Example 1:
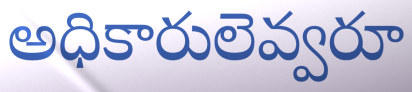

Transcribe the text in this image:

అధికారులెవ్వరూ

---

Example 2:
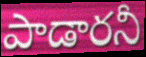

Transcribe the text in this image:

పాడారనీ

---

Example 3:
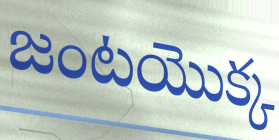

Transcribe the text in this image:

జంటయొక్క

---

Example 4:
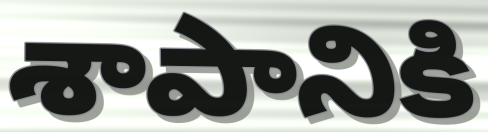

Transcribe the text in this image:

శాపానికి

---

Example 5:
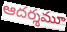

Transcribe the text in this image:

ఆదర్శమూ